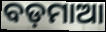
ବଡ଼ମାଆ